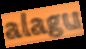
alagu